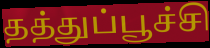
தத்துப்பூச்சி